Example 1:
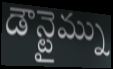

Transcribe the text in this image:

డౌన్టైమ్ను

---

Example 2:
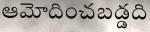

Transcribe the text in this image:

ఆమోదించబడ్డది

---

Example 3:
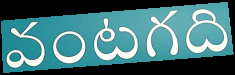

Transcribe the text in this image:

వంటగది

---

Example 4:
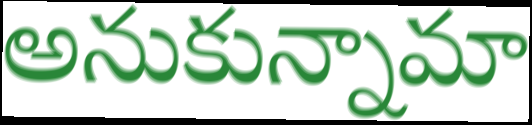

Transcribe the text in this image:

అనుకున్నామా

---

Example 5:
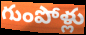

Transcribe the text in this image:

గుంపోళ్లు